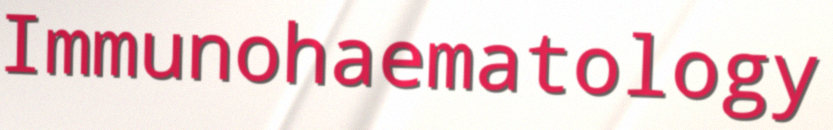
Immunohaematology